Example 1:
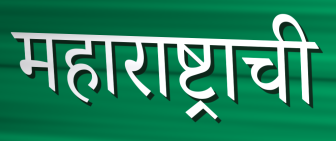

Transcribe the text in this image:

महाराष्ट्राची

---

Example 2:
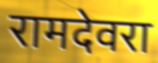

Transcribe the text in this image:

रामदेवरा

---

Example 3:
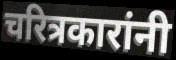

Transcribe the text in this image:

चरित्रकारांनी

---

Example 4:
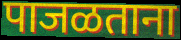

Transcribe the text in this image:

पाजळताना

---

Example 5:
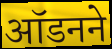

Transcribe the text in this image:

ऑडनने